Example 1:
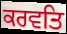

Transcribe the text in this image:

ਕਰਵਤਿ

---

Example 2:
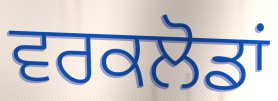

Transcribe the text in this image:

ਵਰਕਲੋਡਾਂ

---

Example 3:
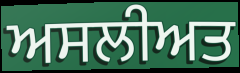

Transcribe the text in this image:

ਅਸਲੀਅਤ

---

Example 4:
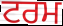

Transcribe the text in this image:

ਟਰਮ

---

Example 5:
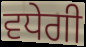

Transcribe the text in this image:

ਵਧੇਗੀ